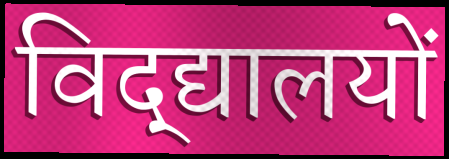
विद्द्यालयों